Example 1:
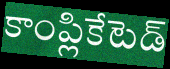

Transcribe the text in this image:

కాంప్లికేటెడ్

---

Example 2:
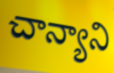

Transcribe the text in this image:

చాన్యాని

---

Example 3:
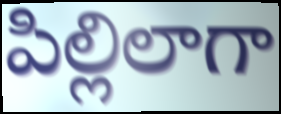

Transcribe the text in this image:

పిల్లిలాగా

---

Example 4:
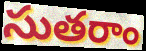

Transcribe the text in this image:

సుతరాం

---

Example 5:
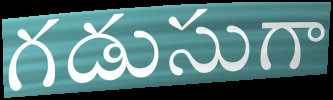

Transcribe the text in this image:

గడుసుగా